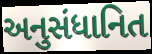
અનુસંધાનિત